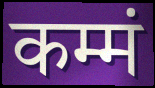
कम्मं